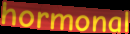
hormonal